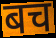
बच